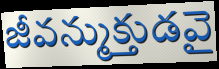
జీవన్ముక్తుడవై